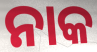
ନାକ